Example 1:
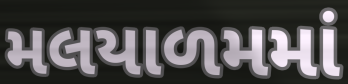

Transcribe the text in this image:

મલયાળમમાં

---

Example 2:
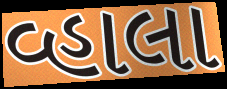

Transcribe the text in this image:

વ્હાલા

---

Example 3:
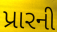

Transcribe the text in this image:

પ્રારની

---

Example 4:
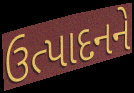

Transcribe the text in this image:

ઉત્પાદનને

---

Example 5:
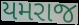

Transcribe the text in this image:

યમરાજ